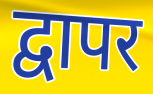
द्वापर